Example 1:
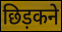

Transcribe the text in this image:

छिड़कने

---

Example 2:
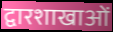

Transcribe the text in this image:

द्वारशाखाओं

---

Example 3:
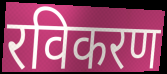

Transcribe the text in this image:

रविकरण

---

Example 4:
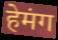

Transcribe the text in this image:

हेमंग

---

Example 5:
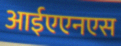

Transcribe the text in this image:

आईएएनएस